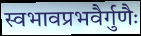
स्वभावप्रभवैर्गुणैः